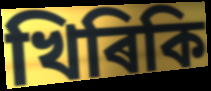
খিৰিকি